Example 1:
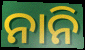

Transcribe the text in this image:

ନାନି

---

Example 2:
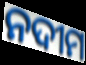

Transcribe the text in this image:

ନଦୀମ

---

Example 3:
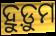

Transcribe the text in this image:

ହୁଡ଼ୁମ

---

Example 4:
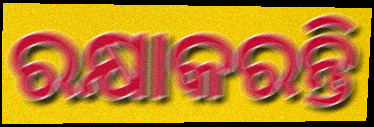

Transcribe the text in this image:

ରକ୍ଷାକରନ୍ତି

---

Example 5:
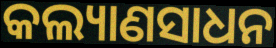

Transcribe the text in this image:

କଲ୍ୟାଣସାଧନ